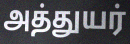
அத்துயர்